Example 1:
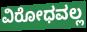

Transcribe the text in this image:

ವಿರೋಧವಲ್ಲ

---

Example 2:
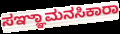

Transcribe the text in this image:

ಸಞ್ಞಾಮನಸಿಕಾರಾ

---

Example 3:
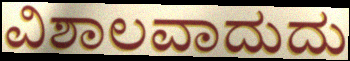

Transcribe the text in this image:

ವಿಶಾಲವಾದುದು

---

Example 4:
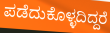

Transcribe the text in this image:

ಪಡೆದುಕೊಳ್ಳದಿದ್ದರೆ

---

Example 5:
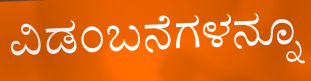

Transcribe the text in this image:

ವಿಡಂಬನೆಗಳನ್ನೂ